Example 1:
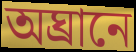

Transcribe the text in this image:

অঘ্রানে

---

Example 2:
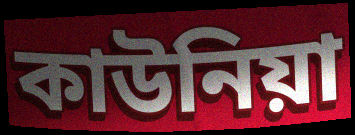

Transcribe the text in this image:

কাউনিয়া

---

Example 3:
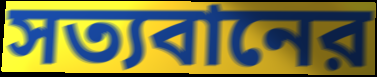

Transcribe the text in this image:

সত্যবানের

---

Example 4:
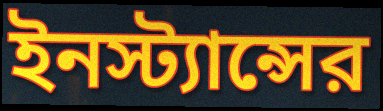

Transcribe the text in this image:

ইনস্ট্যান্সের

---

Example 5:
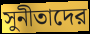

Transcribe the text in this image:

সুনীতাদের